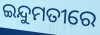
ଇନ୍ଦୁମତୀରେ